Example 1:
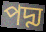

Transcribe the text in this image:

পদ্ম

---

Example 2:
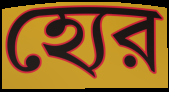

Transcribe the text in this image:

হ্যের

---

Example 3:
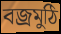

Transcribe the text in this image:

বজ্রমুঠি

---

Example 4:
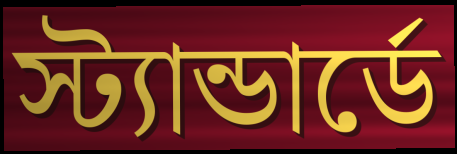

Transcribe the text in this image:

স্ট্যান্ডার্ডে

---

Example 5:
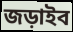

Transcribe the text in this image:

জড়াইব